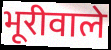
भूरीवाले